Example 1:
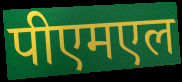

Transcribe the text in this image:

पीएमएल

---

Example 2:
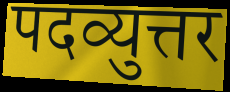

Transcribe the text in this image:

पदव्युत्तर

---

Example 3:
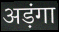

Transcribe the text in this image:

अड़ंगा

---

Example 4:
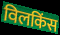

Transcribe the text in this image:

विलकिंस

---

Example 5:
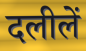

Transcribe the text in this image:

दलीलें